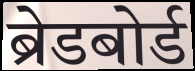
ब्रेडबोर्ड